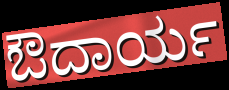
ಔದಾರ್ಯ